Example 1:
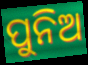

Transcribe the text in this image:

ପୁନିଅ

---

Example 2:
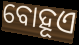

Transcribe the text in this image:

ବୋହୂଏ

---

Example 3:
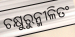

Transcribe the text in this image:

ଚକ୍ଷୁରୁନ୍ମୀଳିତଂ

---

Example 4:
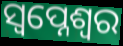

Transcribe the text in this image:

ସ୍ଵପ୍ନେଶ୍ଵର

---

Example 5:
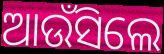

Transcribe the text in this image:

ଆଉଁସିଲେ